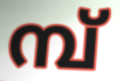
മ്പ്